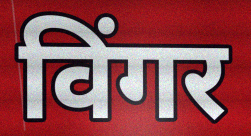
विंगर